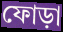
ফোড়া